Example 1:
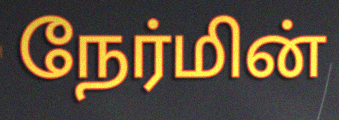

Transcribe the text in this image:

நேர்மின்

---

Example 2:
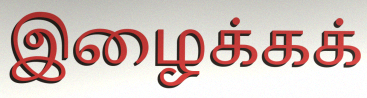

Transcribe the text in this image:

இழைக்கக்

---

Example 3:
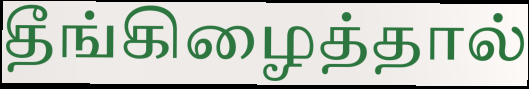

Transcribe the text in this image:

தீங்கிழைத்தால்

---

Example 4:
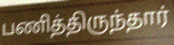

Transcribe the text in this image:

பணித்திருந்தார்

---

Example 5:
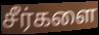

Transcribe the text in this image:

சீர்களை